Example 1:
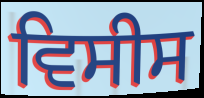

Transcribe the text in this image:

ਵਿਸੀਸ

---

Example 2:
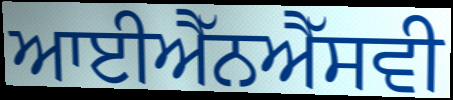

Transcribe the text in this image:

ਆਈਐੱਨਐੱਸਵੀ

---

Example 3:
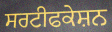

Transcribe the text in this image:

ਸਰਟੀਫਕੇਸ਼ਨ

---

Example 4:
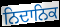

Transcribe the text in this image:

ਨਿਦਾਨਿਕ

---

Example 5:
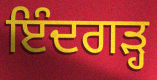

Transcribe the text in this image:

ਇੰਦਗੜ੍ਹ